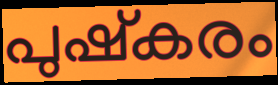
പുഷ്കരം